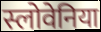
स्लोवेनिया